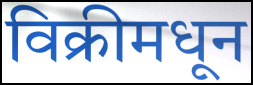
विक्रीमधून